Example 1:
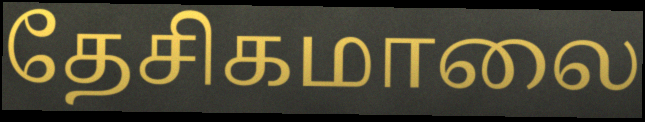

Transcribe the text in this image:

தேசிகமாலை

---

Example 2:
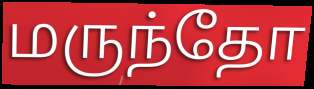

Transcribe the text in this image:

மருந்தோ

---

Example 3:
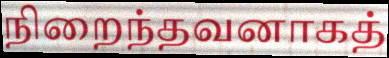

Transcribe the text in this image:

நிறைந்தவனாகத்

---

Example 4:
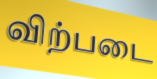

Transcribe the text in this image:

விற்படை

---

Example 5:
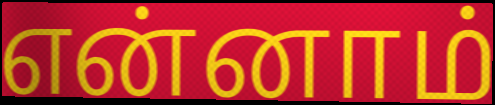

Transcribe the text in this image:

என்னாம்